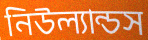
নিউল্যান্ডস